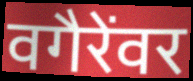
वगैरेंवर